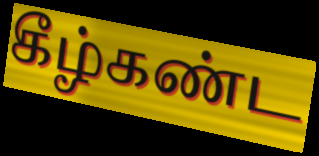
கீழ்கண்ட